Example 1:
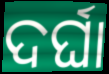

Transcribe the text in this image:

ଦର୍ଘା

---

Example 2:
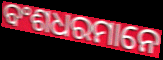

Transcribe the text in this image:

ବଂଶଧରମାନେ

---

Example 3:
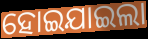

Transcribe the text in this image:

ହୋଇଯାଇଲା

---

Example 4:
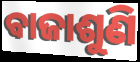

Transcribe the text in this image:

ବାଜାଶୁଣି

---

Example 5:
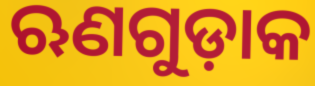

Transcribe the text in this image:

ଋଣଗୁଡ଼ାକ